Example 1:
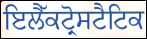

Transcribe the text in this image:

ਇਲੈੱਕਟ੍ਰੋਸਟੈਟਿਕ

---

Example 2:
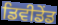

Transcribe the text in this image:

ਡਿਵੀਡੇਂਡ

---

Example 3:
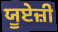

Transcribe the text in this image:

ਯੂਏਜ਼ੀ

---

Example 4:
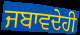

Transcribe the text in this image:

ਜਬਾਵਦੇਹੀ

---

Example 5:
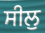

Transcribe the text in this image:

ਸੀਲੁ